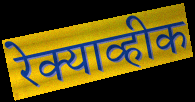
रेक्याव्हीक